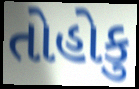
તોહોકુ